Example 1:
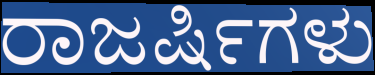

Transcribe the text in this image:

ರಾಜರ್ಷಿಗಳು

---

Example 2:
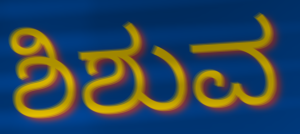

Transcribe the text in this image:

ಶಿಶುವ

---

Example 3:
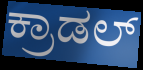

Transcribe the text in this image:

ಕ್ರಾಡಲ್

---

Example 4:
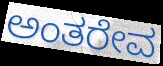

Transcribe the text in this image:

ಅಂತರೇವ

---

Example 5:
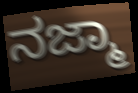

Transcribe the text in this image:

ನಜ್ಮಾ